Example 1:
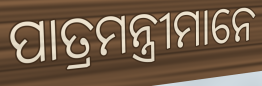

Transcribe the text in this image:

ପାତ୍ରମନ୍ତ୍ରୀମାନେ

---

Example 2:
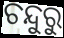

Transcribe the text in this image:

ଚନ୍ଦୁରୁ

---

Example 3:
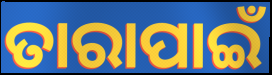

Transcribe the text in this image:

ତାରାପାଇଁ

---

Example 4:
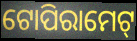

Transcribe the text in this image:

ଟୋପିରାମେଟ୍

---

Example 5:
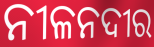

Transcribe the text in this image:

ନୀଳନଦୀର